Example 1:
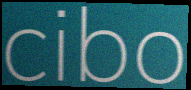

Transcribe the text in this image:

cibo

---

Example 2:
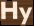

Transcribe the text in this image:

Hy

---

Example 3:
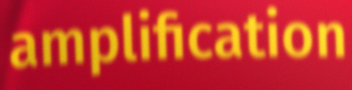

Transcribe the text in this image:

amplification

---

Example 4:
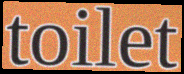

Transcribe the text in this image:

toilet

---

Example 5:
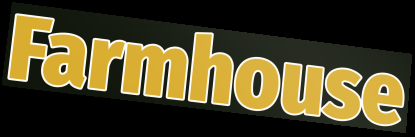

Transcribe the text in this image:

Farmhouse